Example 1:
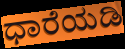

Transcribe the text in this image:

ಧಾರೆಯಡಿ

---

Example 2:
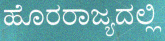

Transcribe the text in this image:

ಹೊರರಾಜ್ಯದಲ್ಲಿ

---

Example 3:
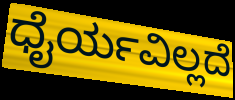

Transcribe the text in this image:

ಧೈರ್ಯವಿಲ್ಲದೆ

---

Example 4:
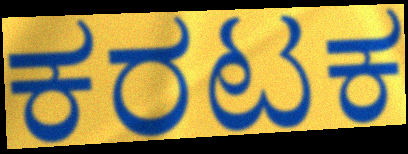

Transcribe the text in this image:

ಕರಟಕ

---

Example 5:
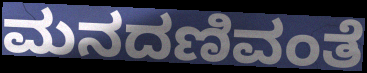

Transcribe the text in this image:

ಮನದಣಿವಂತೆ